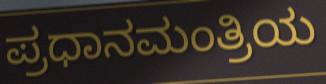
ಪ್ರಧಾನಮಂತ್ರಿಯ